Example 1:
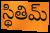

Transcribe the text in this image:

స్థితిమ్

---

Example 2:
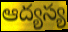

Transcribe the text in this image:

ఆద్యస్య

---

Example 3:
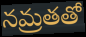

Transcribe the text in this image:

నమ్రతతో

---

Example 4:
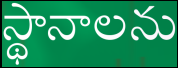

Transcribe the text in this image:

స్థానాలను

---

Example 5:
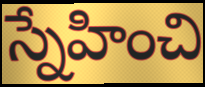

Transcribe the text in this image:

స్నేహించి